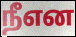
நீஎன